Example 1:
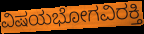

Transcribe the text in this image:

ವಿಷಯಭೋಗವಿರಕ್ತಿ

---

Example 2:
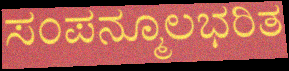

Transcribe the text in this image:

ಸಂಪನ್ಮೂಲಭರಿತ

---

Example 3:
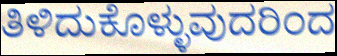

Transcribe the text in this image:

ತಿಳಿದುಕೊಳ್ಳುವುದರಿಂದ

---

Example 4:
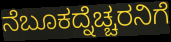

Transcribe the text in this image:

ನೆಬೂಕದ್ನೆಚ್ಚರನಿಗೆ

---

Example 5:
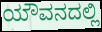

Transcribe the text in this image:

ಯೌವನದಲ್ಲಿ